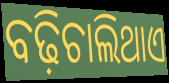
ବଢ଼ିଚାଲିଥାଏ